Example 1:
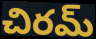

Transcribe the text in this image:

చిరమ్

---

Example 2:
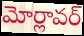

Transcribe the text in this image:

మోర్లావర్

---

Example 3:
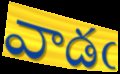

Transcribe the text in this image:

వాడఁ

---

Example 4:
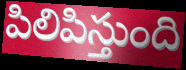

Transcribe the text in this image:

పిలిపిస్తుంది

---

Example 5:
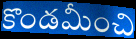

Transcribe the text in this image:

కొండమీంచి